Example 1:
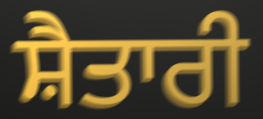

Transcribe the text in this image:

ਸ਼ੈਤਾਰੀ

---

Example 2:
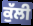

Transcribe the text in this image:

ਕੁੱਲੀ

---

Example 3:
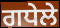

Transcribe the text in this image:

ਗਧੇਲੇ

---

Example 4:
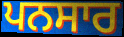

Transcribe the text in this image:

ਪਨਸਾਰ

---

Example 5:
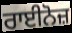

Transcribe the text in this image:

ਰਾਈਨੋਜ਼